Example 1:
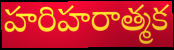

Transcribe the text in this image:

హరిహరాత్మక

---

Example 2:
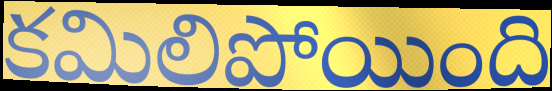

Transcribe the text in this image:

కమిలిపోయింది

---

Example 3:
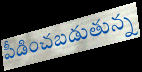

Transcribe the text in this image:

పీడించబడుతున్న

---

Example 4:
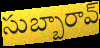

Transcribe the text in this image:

సుబ్బారావ్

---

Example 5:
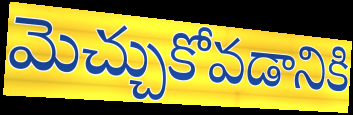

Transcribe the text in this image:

మెచ్చుకోవడానికి